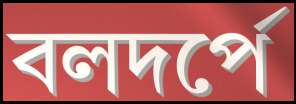
বলদর্পে